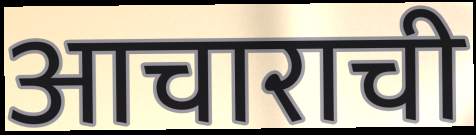
आचाराची